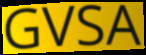
GVSA